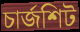
চার্জশিট